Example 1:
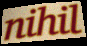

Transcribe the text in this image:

nihil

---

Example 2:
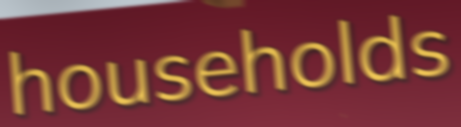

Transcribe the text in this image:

households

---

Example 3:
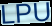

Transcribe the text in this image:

LPU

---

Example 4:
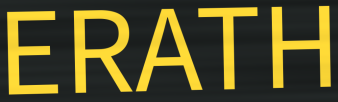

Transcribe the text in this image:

ERATH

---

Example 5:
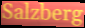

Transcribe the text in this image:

Salzberg